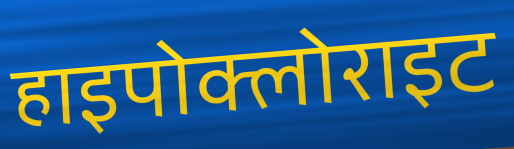
हाइपोक्लोराइट